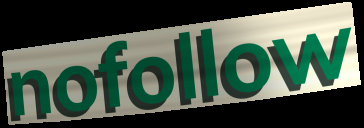
nofollow